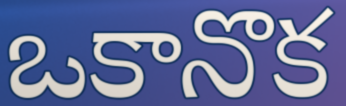
ఒకానొక